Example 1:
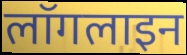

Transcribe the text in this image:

लॉगलाइन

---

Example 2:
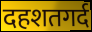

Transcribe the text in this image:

दहशतगर्द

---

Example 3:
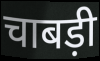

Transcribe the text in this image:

चाबड़ी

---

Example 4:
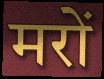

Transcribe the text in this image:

मरों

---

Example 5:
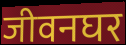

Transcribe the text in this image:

जीवनघर